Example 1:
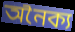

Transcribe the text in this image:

অনৈক্য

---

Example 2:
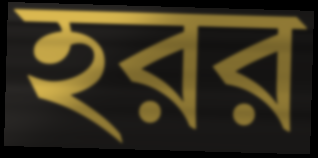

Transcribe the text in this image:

হরর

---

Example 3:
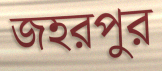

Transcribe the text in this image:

জহরপুর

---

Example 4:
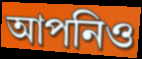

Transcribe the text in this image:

আপনিও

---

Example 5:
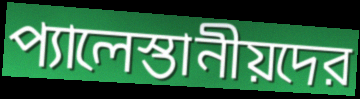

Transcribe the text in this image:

প্যালেস্তানীয়দের